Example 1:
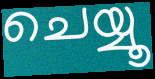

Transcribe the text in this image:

ചെയ്യൂ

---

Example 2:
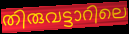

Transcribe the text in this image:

തിരുവട്ടാറിലെ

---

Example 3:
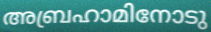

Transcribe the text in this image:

അബ്രഹാമിനോടു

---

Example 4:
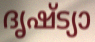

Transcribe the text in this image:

ദൃഷ്ട്യാ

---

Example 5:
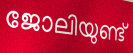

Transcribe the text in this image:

ജോലിയുണ്ട്